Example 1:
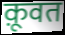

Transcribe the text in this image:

क़ूवत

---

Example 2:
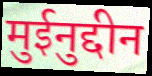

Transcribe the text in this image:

मुईनुद्दीन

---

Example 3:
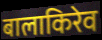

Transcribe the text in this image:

बालाकिरेव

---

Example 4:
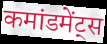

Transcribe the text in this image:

कमांडमेंट्स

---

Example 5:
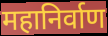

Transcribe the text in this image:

महानिर्वाण